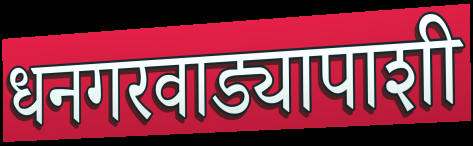
धनगरवाड्यापाशी